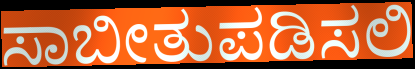
ಸಾಬೀತುಪಡಿಸಲಿ